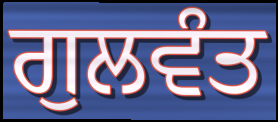
ਗੁਲਵੰਤ